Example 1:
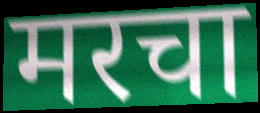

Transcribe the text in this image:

मरचा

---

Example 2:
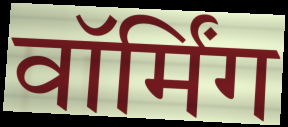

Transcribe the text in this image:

वॉर्मिंग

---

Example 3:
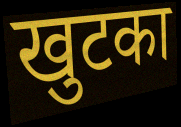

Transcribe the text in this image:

खुटका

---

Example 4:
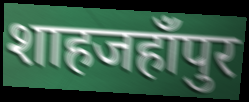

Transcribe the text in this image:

शाहजहाँपुर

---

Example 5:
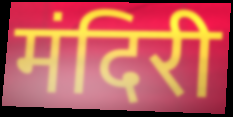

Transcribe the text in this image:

मंदिरी